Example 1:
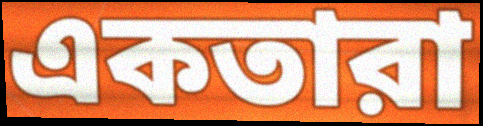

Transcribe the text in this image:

একতারা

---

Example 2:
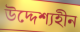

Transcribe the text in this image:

উদ্দেশ্যহীন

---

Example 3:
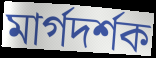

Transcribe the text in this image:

মার্গদর্শক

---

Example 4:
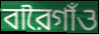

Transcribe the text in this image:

বারৈগাঁও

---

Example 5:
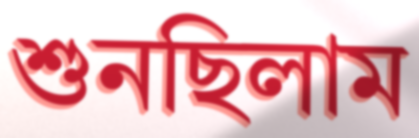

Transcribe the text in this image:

শুনছিলাম